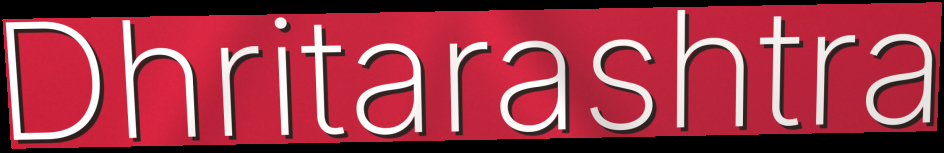
Dhritarashtra